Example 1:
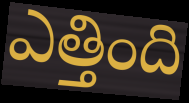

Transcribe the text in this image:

ఎత్తింది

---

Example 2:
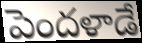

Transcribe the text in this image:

పెందళాడే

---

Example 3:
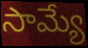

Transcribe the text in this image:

సామ్యే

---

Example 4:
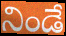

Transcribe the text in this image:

నిండే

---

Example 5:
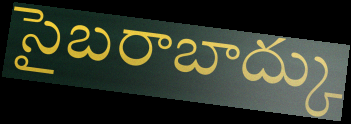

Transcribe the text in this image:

సైబరాబాద్కు